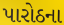
પારોઠના